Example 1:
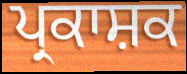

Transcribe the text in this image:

ਪ੍ਰਕਾਸ਼ਕ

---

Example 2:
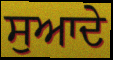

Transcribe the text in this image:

ਸੁਆਦੇ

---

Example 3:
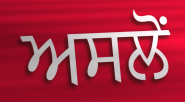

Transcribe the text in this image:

ਅਸਲੋਂ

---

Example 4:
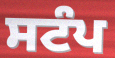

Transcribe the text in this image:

ਸਟੰਪ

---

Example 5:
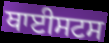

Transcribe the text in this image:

ਥਾਈਸਟਸ